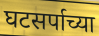
घटसर्पाच्या